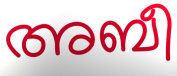
അബീ